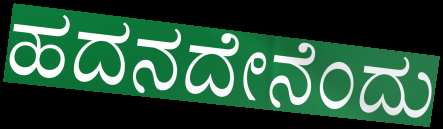
ಹದನದೇನೆಂದು